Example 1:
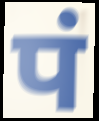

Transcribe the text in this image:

पं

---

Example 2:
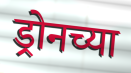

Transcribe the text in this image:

ड्रोनच्या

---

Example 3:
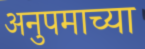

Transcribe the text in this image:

अनुपमाच्या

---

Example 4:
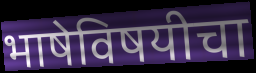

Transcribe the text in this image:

भाषेविषयीचा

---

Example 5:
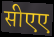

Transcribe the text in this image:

सीएए